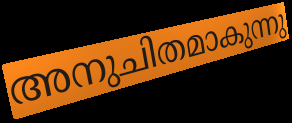
അനുചിതമാകുന്നു